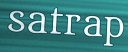
satrap